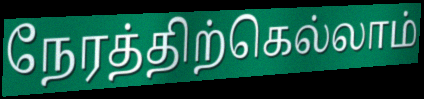
நேரத்திற்கெல்லாம்